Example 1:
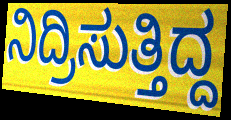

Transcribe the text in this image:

ನಿದ್ರಿಸುತ್ತಿದ್ದ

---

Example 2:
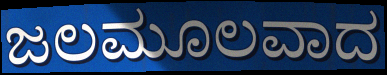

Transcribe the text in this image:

ಜಲಮೂಲವಾದ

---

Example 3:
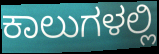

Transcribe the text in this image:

ಕಾಲುಗಳಲ್ಲಿ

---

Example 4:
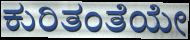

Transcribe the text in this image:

ಕುರಿತಂತೆಯೇ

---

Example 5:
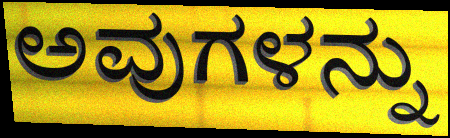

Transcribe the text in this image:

ಅವುಗಳನ್ನು